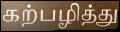
கற்பழித்து